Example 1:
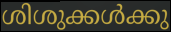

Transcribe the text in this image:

ശിശുക്കൾക്കു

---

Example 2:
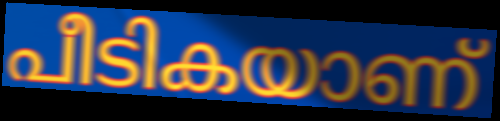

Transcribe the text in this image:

പീടികയാണ്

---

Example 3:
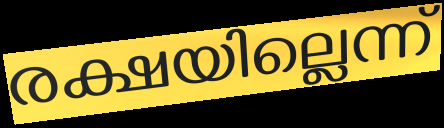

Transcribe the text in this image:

രക്ഷയില്ലെന്ന്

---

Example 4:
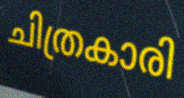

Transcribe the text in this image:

ചിത്രകാരി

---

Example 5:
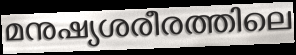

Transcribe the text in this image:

മനുഷ്യശരീരത്തിലെ